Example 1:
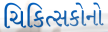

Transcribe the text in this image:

ચિકિત્સકોનો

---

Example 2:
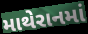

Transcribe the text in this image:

માથેરાનમાં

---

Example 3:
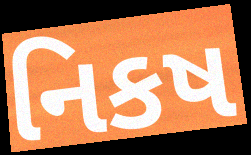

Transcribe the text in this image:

નિકષ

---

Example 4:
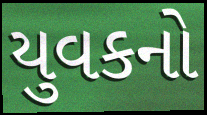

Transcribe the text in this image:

યુવકનો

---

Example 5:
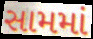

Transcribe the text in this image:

સામમાં